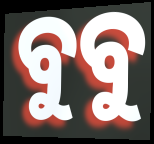
ବୁବୁ